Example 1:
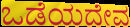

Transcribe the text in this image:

ಒಡೆಯದೇವ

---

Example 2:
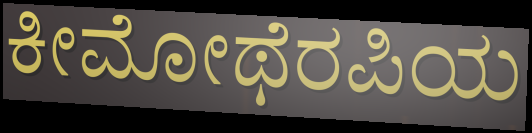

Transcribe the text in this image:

ಕೀಮೋಥೆರಪಿಯ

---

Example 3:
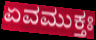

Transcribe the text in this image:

ಏವಮುಕ್ತಃ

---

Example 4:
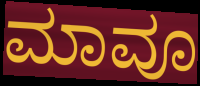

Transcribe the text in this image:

ಮಾವೂ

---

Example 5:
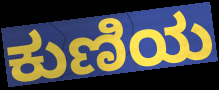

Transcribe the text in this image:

ಕುಣಿಯ